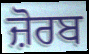
ਜ਼ੋਰਬ